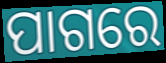
ପାଗରେ